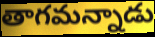
తాగమన్నాడు